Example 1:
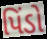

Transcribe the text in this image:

પિંડો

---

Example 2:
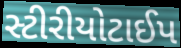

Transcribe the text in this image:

સ્ટીરીયોટાઈપ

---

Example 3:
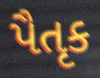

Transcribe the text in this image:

પૈતૃક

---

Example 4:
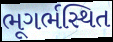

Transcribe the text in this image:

ભૂગર્ભસ્થિત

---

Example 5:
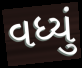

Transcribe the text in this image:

વધ્યું